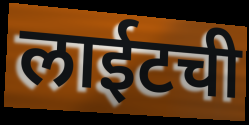
लाईटची